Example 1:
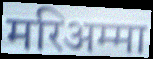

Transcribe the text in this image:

मरिअम्मा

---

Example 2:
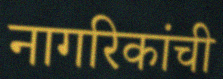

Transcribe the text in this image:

नागरिकांची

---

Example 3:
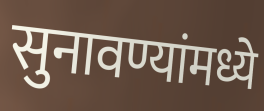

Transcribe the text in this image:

सुनावण्यांमध्ये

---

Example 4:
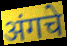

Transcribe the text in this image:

अंगचे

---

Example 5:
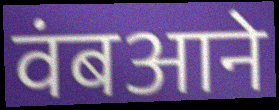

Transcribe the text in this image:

वंबआने